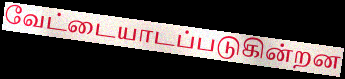
வேட்டையாடப்படுகின்றன